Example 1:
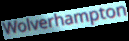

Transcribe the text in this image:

Wolverhampton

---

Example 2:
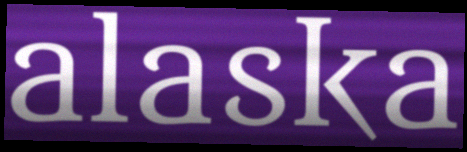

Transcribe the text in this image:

alaska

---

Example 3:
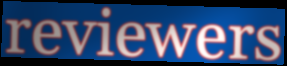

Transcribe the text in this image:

reviewers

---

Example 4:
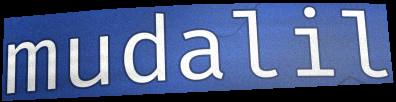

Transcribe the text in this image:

mudalil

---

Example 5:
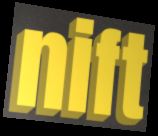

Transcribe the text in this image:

nift